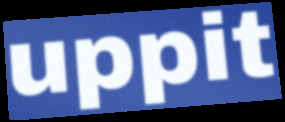
uppit